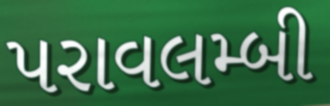
પરાવલમ્બી